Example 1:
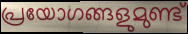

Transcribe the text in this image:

പ്രയോഗങ്ങളുമുണ്ട്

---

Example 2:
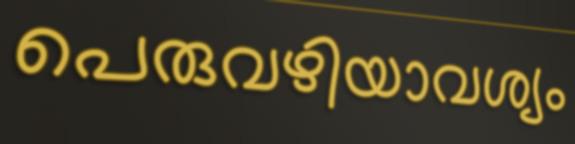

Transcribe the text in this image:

പെരുവഴിയാവശ്യം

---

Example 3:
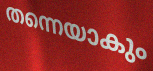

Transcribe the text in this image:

തന്നെയാകും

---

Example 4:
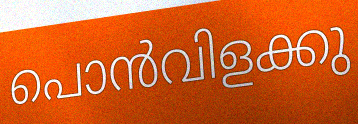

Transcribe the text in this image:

പൊൻവിളക്കു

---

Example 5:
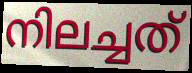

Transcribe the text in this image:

നിലച്ചത്